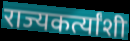
राज्यकर्त्यांशी